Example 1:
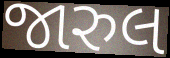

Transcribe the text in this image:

જારુલ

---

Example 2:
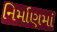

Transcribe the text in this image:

નિર્માણમાં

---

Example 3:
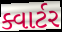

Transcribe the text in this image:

ક્વાર્ટર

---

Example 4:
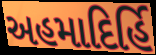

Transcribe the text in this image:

અહમાદિર્હિ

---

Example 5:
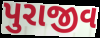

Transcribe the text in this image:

પુરાજીવ